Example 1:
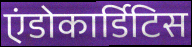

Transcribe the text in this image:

एंडोकार्डिटिस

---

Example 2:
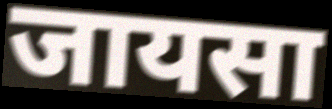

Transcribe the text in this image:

जायसा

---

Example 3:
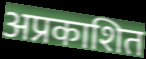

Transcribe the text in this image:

अप्रकाशित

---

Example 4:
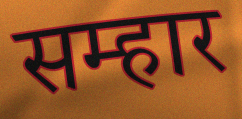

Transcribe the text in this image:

सम्हार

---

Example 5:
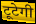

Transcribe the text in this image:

टूटेगी